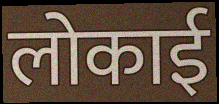
लोकाई